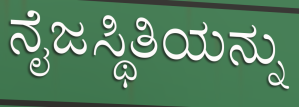
ನೈಜಸ್ಥಿತಿಯನ್ನು